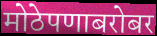
मोठेपणाबरोबर